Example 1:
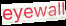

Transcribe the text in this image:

eyewall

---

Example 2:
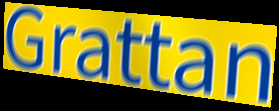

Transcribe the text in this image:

Grattan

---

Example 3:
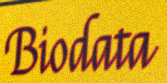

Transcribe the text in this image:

Biodata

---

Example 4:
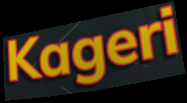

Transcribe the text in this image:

Kageri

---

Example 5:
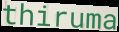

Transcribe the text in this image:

thiruma